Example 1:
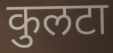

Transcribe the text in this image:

कुलटा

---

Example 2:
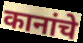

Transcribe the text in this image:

कानांचे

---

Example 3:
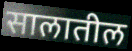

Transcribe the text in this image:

सालातील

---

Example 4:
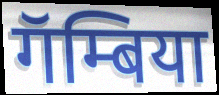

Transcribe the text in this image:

गॅम्बिया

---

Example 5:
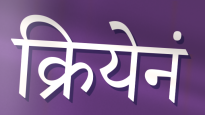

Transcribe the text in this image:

क्रियेनं